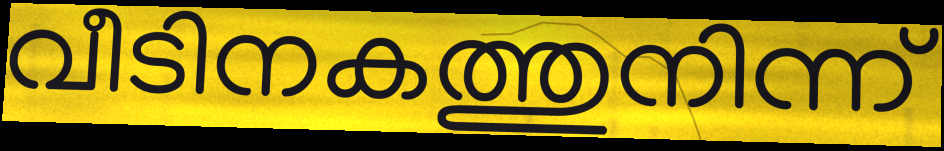
വീടിനകത്തുനിന്ന്